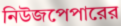
নিউজপেপারের